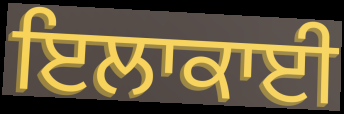
ਇਲਾਕਾਈ